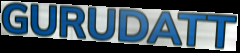
GURUDATT